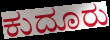
ಕುದೂರು